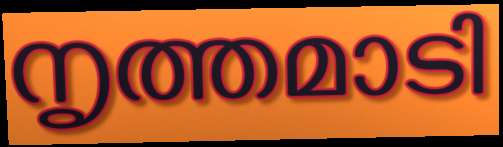
നൃത്തമാടി